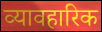
व्‍यावहारिक